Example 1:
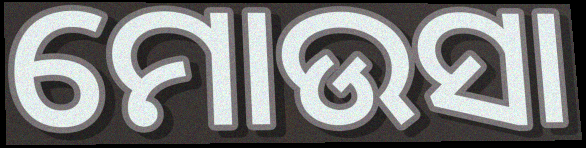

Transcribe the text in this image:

ମୋଉସା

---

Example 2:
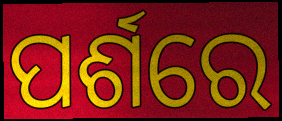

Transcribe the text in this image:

ପର୍ଶରେ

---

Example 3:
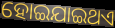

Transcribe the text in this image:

ହୋଇଯାଇଥଏ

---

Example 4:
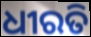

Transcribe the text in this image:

ଧୀରତି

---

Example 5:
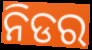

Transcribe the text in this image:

ନିଡର